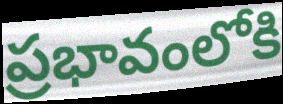
ప్రభావంలోకి